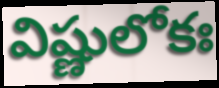
విష్ణులోకః